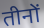
तीनों